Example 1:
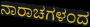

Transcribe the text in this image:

ನಾರಾಚಗಳಂದ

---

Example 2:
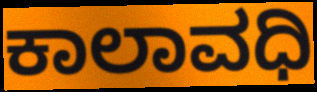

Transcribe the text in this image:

ಕಾಲಾವಧಿ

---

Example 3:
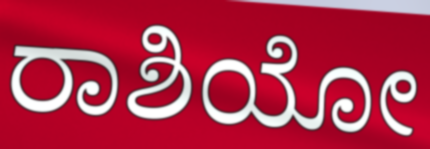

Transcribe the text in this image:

ರಾಶಿಯೋ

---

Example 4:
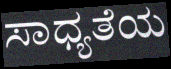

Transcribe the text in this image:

ಸಾಧ್ಯತೆಯ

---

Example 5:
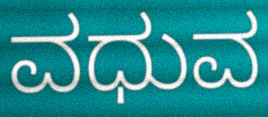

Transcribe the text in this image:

ವಧುವ